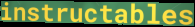
instructables